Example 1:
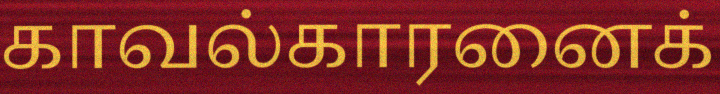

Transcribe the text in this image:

காவல்காரனைக்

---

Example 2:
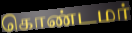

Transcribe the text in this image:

கொண்டமர்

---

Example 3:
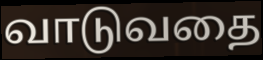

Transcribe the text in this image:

வாடுவதை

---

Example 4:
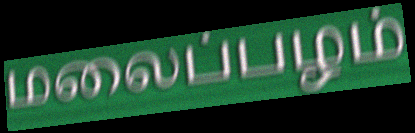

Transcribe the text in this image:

மலைப்பழம்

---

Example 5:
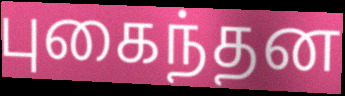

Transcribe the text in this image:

புகைந்தன